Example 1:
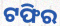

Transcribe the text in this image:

ଟଫିର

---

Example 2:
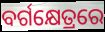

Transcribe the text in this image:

ବର୍ଗକ୍ଷେତ୍ରରେ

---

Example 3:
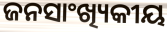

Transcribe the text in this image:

ଜନସାଂଖ୍ୟିକୀୟ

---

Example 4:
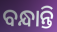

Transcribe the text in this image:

ବନ୍ଧାନ୍ତି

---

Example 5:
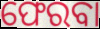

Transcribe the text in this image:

ଫେରବା